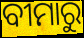
ବୀମାରୁ